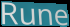
Rune